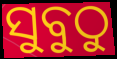
ସୁବୁଠୁ